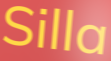
Silla